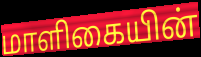
மாளிகையின்